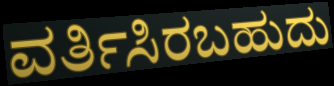
ವರ್ತಿಸಿರಬಹುದು